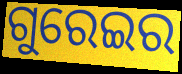
ଗୁରେଇର